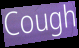
Cough